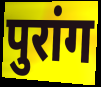
पुरांग